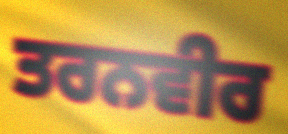
ਤਰਨਵੀਰ